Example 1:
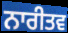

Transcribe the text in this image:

ਨਾਰੀਤਵ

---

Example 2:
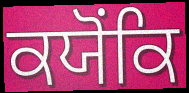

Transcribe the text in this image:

ਕਯੋਂਕਿ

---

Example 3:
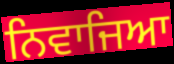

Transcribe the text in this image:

ਨਿਵਾਜਿਆ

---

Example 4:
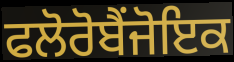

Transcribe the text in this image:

ਫਲੋਰੋਬੈਂਜੋਇਕ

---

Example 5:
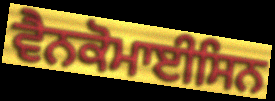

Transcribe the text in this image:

ਵੈਨਕੋਮਾਈਸਿਨ